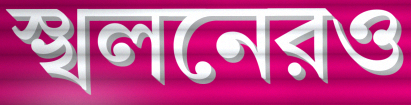
স্খলনেরও